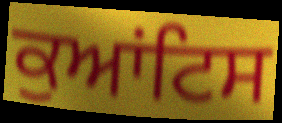
ਕੁਆਂਟਿਸ